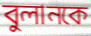
বুলানকে